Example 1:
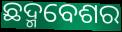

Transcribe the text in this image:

ଛଦ୍ମବେଶର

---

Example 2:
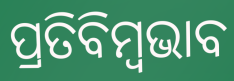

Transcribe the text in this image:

ପ୍ରତିବିମ୍ବଭାବ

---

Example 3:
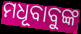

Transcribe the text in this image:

ମଧୂବାବୁଙ୍କ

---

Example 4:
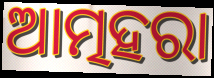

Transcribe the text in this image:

ଆତ୍ମହରା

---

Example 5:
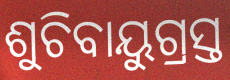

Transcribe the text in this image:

ଶୁଚିବାୟୁଗ୍ରସ୍ତ